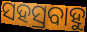
ସହସ୍ରବାହୁ